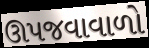
ઊપજવાવાળો